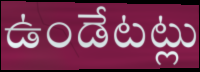
ఉండేటట్లు